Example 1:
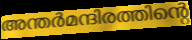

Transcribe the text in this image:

അന്തർമന്ദിരത്തിന്റെ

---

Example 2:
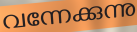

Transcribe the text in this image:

വന്നേക്കുന്നു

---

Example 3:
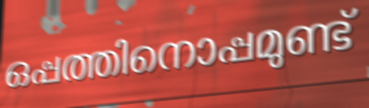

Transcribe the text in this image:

ഒപ്പത്തിനൊപ്പമുണ്ട്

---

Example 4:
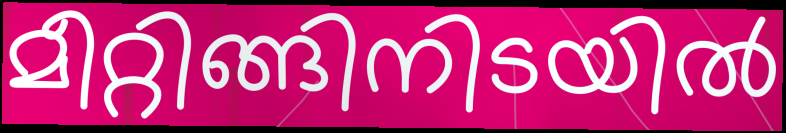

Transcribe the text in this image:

മീറ്റിങ്ങിനിടയിൽ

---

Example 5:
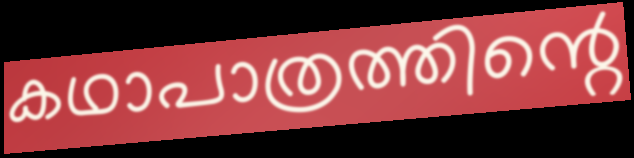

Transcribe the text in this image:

കഥാപാത്രത്തിന്റെ